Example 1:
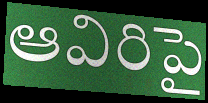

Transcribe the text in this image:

ఆవిరిపై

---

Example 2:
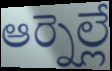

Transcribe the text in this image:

ఆర్నెల్లే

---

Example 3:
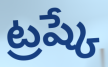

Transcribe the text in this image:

ట్రష్కే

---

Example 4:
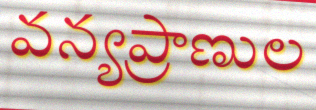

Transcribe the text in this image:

వన్యప్రాణుల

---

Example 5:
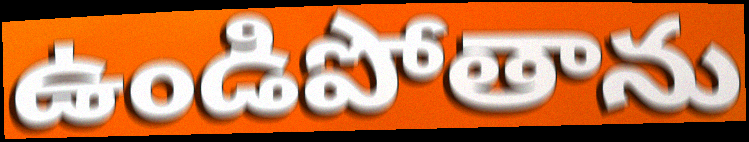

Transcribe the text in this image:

ఉండిపోతాను